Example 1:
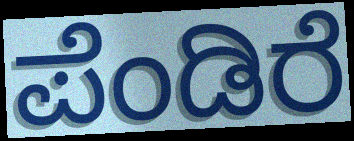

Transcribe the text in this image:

ಪೆಂಡಿರೆ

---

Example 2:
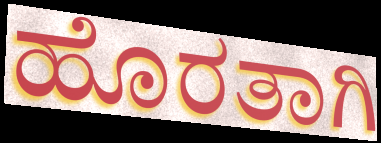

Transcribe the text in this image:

ಹೊರತಾಗಿ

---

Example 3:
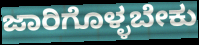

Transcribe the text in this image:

ಜಾರಿಗೊಳ್ಳಬೇಕು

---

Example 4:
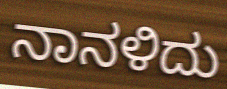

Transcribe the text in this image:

ನಾನಳಿದು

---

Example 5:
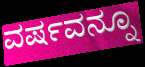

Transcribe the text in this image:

ವರ್ಷವನ್ನೂ